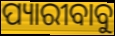
ପ୍ୟାରୀବାବୁ